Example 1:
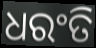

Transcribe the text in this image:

ଧରଂତି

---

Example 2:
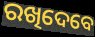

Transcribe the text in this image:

ରଖିଦେବେ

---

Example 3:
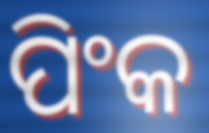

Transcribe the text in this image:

ପିଂକ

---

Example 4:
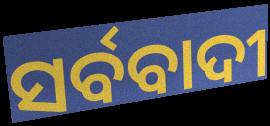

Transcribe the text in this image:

ସର୍ବବାଦୀ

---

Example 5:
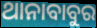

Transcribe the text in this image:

ଥାନାବାବୁର